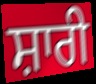
ਸ਼ਾਰੀ